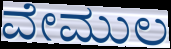
ವೇಮುಲ